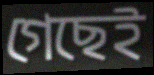
গেছেই